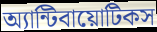
অ্যান্টিবায়োটিকস